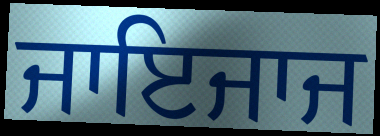
ਜਾਇਜਾਜ